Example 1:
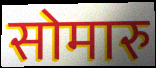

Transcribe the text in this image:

सोमारु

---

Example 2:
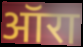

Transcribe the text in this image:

ऑरा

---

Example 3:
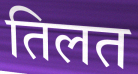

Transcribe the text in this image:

तिलत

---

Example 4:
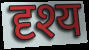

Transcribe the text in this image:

दृश्य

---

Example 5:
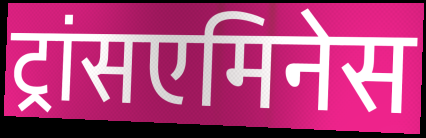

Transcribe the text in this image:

ट्रांसएमिनेस